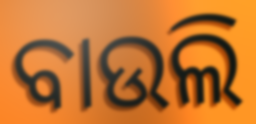
ବାଉଲି